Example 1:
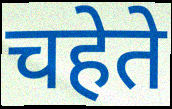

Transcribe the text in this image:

चहेते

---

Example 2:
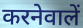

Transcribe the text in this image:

करनेवालें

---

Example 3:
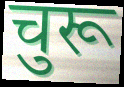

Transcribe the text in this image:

चुरू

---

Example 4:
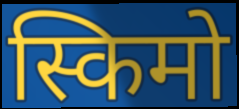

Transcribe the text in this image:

स्किमो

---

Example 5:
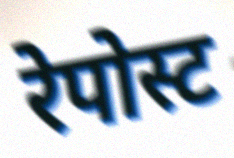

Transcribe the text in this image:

रेपोस्ट